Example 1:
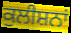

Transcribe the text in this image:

ਕੁਲੀਸ਼ਨਾਂ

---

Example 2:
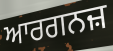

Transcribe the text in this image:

ਆਰਗਨਜ਼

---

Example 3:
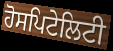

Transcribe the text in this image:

ਹੋਸਪਿਟੇਲਿਟੀ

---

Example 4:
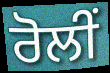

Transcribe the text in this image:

ਰੋਲੀਂ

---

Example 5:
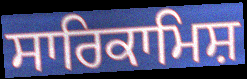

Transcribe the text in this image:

ਸਾਰਿਕਾਮਿਸ਼